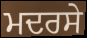
ਮਦਰਸੇ